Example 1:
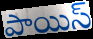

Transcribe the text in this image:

పాయిస్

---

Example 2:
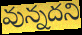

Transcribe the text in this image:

వున్నదని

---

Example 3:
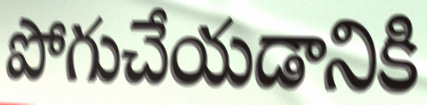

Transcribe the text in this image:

పోగుచేయడానికి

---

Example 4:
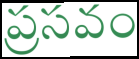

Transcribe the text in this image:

ప్రసవం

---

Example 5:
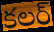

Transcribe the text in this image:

కలర్